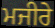
ਮਜੀਰੇ